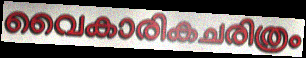
വൈകാരികചരിത്രം